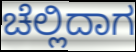
ಚೆಲ್ಲಿದಾಗ